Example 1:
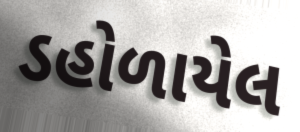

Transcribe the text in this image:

ડહોળાયેલ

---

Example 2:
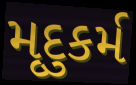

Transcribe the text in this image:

મૃદુકર્મ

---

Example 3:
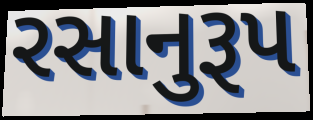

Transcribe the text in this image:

રસાનુરૂપ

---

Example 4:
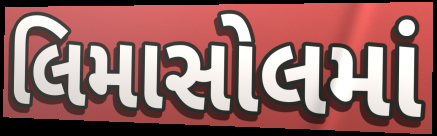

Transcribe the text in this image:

લિમાસોલમાં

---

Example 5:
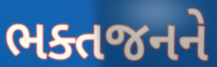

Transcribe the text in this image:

ભક્તજનને